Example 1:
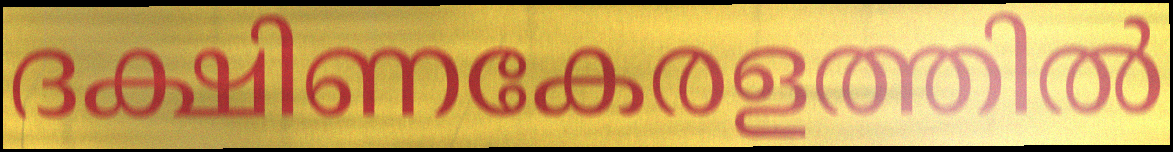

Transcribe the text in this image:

ദക്ഷിണകേരളത്തിൽ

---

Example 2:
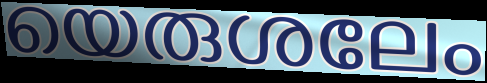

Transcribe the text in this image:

യെരുശലേം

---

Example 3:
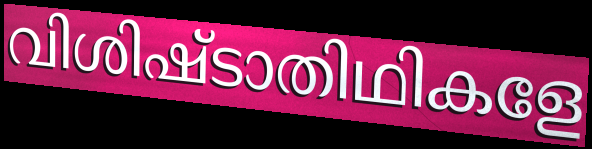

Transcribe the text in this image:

വിശിഷ്ടാതിഥികളേ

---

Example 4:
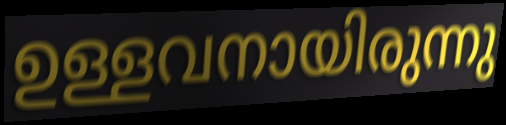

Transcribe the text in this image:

ഉള്ളവനായിരുന്നു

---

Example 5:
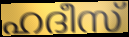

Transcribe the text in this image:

ഹദീസ്